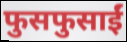
फुसफुसाईं